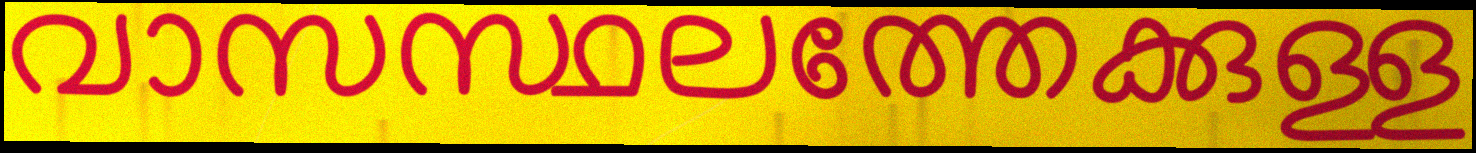
വാസസ്ഥലത്തേക്കുള്ള